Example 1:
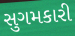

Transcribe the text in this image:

સુગમકારી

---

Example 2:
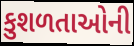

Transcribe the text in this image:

કુશળતાઓની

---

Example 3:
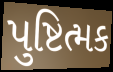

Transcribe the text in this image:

પુષ્ટિત્મક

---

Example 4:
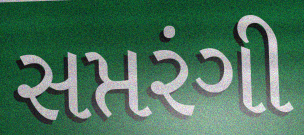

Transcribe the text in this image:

સપ્તરંગી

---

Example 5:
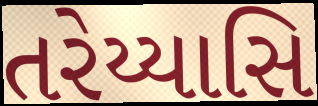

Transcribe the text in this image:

તરેય્યાસિ